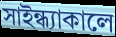
সাইন্ধ্যাকালে